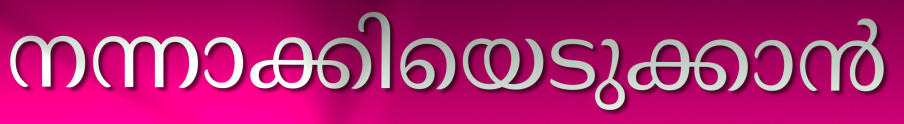
നന്നാക്കിയെടുക്കാൻ